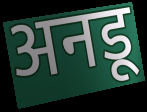
अनडू